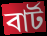
বাৰ্ট